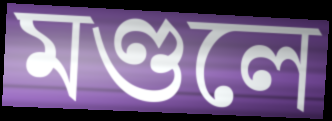
মণ্ডলে